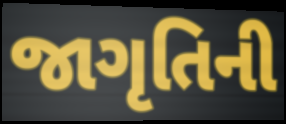
જાગૃતિની